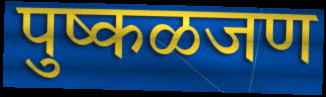
पुष्कळजण